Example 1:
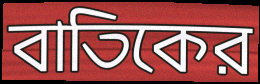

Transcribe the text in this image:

বাতিকের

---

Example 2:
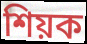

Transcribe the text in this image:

শিয়ক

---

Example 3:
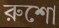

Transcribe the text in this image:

রুশো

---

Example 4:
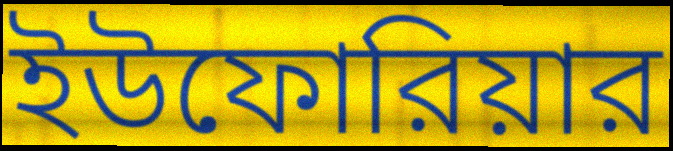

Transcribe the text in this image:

ইউফোরিয়ার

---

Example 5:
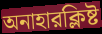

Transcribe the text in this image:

অনাহারক্লিষ্ট